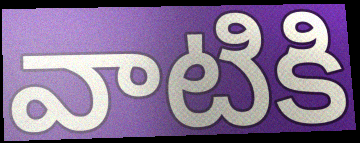
వాటికి